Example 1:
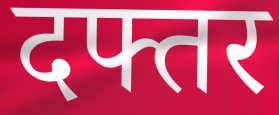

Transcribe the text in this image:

दफ्तर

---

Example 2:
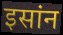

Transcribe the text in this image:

इसांन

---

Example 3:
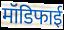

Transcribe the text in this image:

मॉडिफाई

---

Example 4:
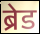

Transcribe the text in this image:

ब्रेड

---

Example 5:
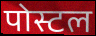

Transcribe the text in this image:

पोस्टल